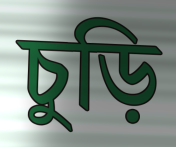
চুড়ি